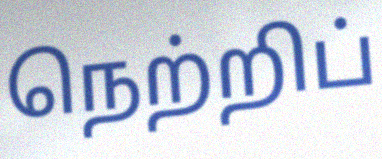
நெற்றிப்